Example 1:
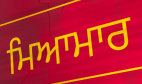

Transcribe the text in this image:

ਮਿਆਮਾਰ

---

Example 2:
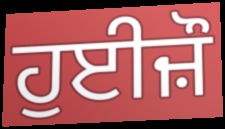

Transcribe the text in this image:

ਹੁਈਜ਼ੌ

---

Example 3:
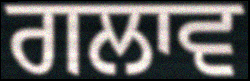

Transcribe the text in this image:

ਗਲਾਵ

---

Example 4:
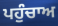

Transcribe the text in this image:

ਪਹੁੰਚਾਅ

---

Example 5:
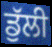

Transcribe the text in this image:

ਡੁੱਲੀ